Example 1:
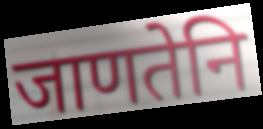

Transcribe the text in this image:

जाणतेनि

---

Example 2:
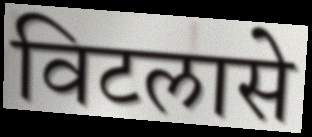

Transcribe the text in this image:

विटलासे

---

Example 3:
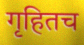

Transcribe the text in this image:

गृहितच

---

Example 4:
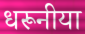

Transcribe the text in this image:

धरूनीया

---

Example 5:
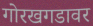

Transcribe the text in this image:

गोरखगडावर